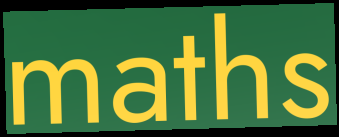
maths